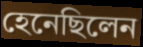
হেনেছিলেন